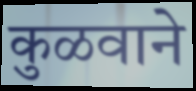
कुळवाने